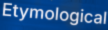
Etymological